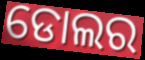
ଡୋଲର